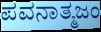
ಪವನಾತ್ಮಜಂ